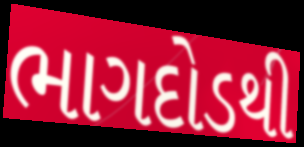
ભાગદોડથી